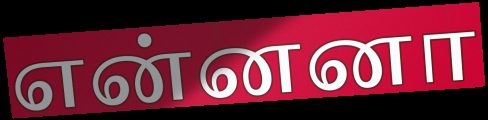
என்னனா